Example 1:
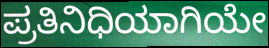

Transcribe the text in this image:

ಪ್ರತಿನಿಧಿಯಾಗಿಯೇ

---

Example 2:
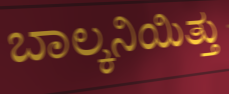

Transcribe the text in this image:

ಬಾಲ್ಕನಿಯಿತ್ತು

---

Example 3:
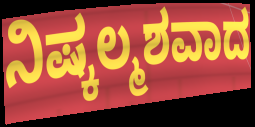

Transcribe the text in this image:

ನಿಷ್ಕಲ್ಮಶವಾದ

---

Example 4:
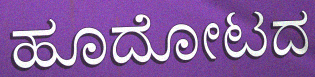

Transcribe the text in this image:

ಹೂದೋಟದ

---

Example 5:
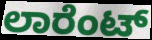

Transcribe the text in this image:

ಲಾರೆಂಟ್